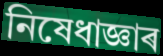
নিষেধাজ্ঞাৰ